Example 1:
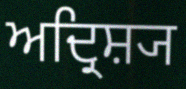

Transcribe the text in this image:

ਅਦ੍ਰਿਸ਼੍ਯ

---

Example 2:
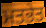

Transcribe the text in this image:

ਮਤਭੇਤ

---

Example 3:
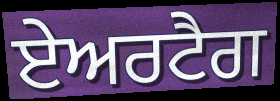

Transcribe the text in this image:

ਏਅਰਟੈਗ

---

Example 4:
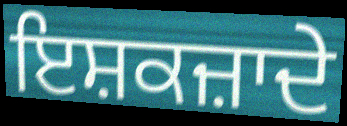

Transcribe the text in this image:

ਇਸ਼ਕਜ਼ਾਦੇ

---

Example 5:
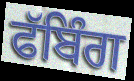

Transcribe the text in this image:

ਫੱਬਿੰਗ